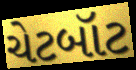
ચેટબૉટ